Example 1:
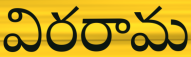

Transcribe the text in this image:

విరరామ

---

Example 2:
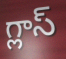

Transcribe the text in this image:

గ్లాస్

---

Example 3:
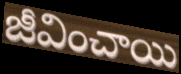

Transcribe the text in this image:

జీవించాయి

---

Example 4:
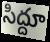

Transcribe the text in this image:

సిద్దూ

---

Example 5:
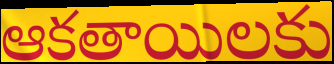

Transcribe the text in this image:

ఆకతాయిలకు